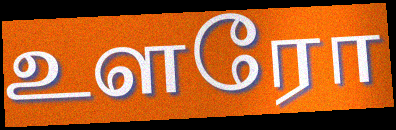
உளரோ